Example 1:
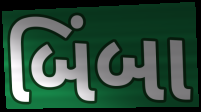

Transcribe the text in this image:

બિંબા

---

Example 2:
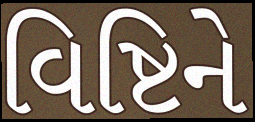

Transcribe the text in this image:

વિષ્ટિને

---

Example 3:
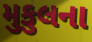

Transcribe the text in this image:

મુકુલના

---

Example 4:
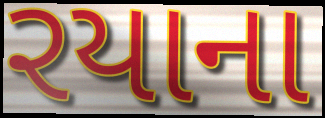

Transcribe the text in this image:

રયાના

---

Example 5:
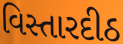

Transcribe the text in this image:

વિસ્તારદીઠ